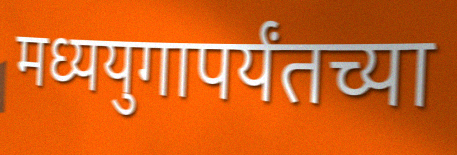
मध्ययुगापर्यंतच्या